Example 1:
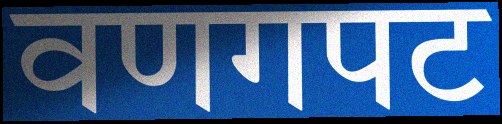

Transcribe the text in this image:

वणगपट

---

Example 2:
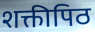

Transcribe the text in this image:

शक्तीपिठ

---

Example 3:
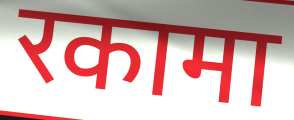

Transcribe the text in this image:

रकामा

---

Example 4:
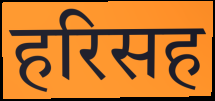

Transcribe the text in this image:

हरिसह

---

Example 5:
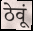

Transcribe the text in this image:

ठेवूं